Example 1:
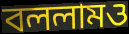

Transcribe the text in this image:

বললামও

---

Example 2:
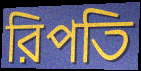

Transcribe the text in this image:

রিপতি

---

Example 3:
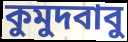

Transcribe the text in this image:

কুমুদবাবু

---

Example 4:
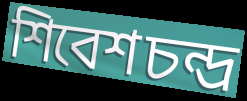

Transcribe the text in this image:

শিবেশচন্দ্র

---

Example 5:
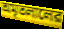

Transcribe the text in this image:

অমৃতলালের